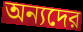
অন্যদের